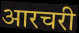
आरचरी